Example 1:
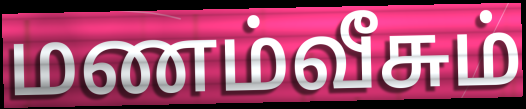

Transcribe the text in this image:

மணம்வீசும்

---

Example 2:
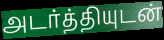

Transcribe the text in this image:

அடர்த்தியுடன்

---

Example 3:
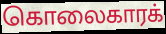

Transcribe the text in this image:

கொலைகாரக்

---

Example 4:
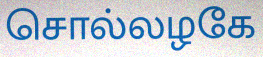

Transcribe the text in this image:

சொல்லழகே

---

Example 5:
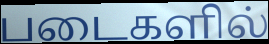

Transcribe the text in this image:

படைகளில்